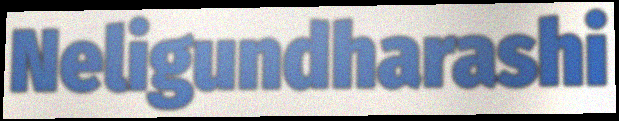
Neligundharashi